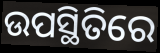
ଉପସ୍ଥିତିରେ